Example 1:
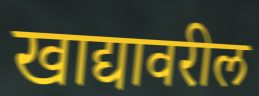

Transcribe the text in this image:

खाद्यावरील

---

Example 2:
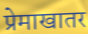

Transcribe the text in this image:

प्रेमाखातर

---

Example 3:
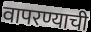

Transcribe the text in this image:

वापरण्याची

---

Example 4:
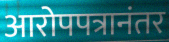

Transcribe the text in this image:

आरोपपत्रानंतर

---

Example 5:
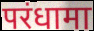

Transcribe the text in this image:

परंधामा